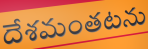
దేశమంతటను